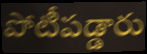
పోటీపడ్డారు